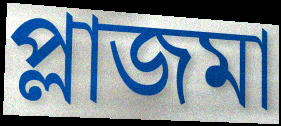
প্লাজমা